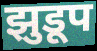
झुडूप